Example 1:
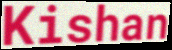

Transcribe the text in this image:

Kishan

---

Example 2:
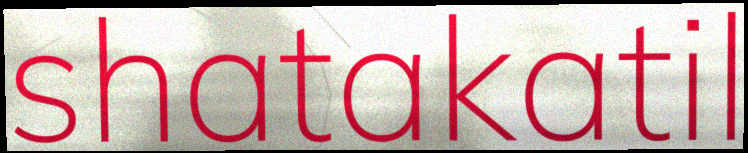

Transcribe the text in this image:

shatakatil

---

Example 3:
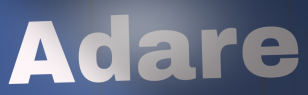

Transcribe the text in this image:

Adare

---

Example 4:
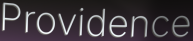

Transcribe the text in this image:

Providence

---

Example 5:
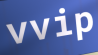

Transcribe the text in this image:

vvip